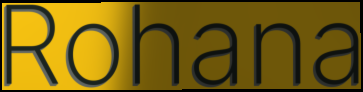
Rohana